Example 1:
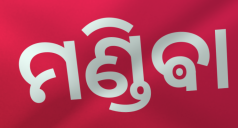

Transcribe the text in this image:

ମଣ୍ଡିଵା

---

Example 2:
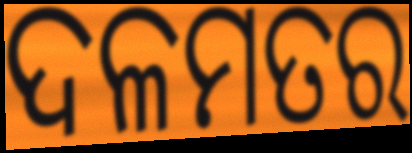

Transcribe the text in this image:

ଦଳମତର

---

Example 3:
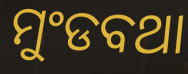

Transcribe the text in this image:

ମୁଂଡବଥା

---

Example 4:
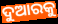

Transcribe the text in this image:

ଦୁଆରକୁ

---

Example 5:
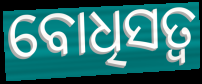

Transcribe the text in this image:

ବୋଧିସତ୍ୱ